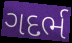
ગદર્ભ